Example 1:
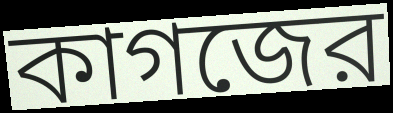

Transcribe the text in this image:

কাগজের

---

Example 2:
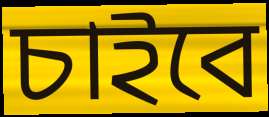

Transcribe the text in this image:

চাইবে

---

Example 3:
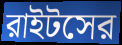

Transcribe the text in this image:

রাইটসের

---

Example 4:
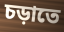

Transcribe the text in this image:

চড়াতে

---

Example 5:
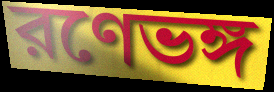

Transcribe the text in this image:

রণেভঙ্গ